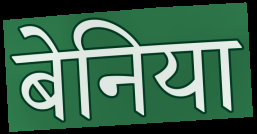
बेनिया